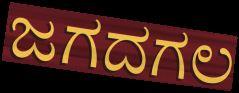
ಜಗದಗಲ